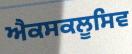
ਐਕਸਕਲੂਸਿਵ